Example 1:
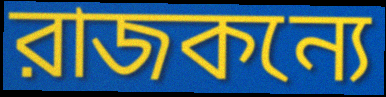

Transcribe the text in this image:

রাজকন্যে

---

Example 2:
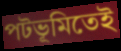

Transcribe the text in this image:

পটভূমিতেই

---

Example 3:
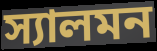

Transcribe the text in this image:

স্যালমন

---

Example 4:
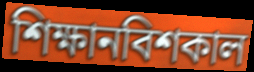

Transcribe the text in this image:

শিক্ষানবিশকাল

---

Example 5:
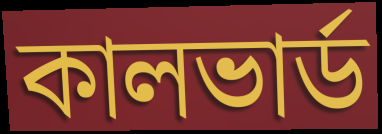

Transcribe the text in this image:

কালভার্ড